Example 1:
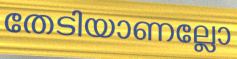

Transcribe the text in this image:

തേടിയാണല്ലോ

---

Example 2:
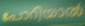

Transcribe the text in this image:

പോറിയാൽ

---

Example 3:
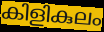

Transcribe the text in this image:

കിളികുലം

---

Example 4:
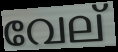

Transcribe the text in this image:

വേല്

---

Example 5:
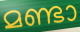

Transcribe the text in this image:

മണ്ടാ